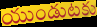
యుండుటకు